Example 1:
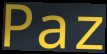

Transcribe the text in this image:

Paz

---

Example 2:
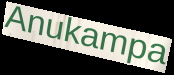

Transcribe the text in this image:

Anukampa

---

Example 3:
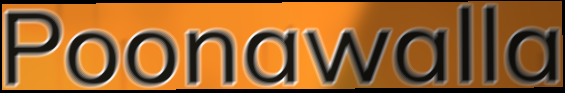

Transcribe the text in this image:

Poonawalla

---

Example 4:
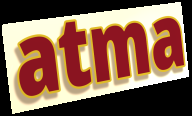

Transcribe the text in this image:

atma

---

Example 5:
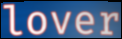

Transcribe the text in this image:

lover